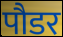
पौडर